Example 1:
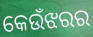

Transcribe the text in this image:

କେଉଁଝରର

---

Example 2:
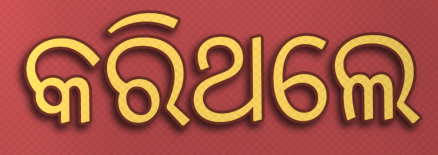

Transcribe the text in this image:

କରିଥଲେ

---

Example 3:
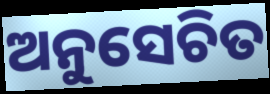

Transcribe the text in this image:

ଅନୁସେଚିତ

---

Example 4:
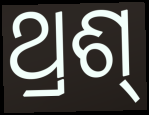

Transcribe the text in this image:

ଥ୍ରଶ୍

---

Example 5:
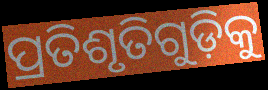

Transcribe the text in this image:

ପ୍ରତିଶୃତିଗୁଡ଼ିକୁ